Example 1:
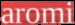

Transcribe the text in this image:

aromi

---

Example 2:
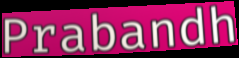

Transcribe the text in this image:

Prabandh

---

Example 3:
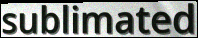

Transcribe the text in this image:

sublimated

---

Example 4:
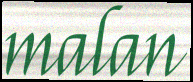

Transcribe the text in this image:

malan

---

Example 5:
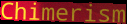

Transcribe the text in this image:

Chimerism